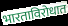
भारताविरोधात